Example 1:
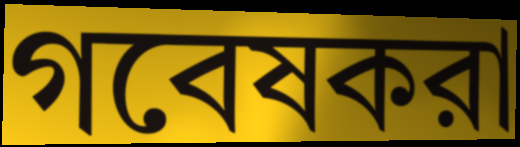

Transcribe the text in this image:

গবেষকরা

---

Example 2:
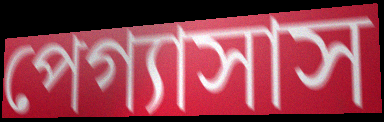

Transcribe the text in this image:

পেগ্যাসাস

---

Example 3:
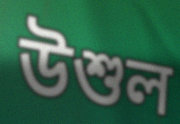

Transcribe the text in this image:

উশুল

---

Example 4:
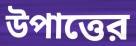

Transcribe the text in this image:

উপাত্তের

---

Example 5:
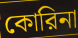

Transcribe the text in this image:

কোরিনা